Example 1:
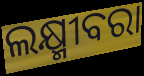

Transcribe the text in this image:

ଲକ୍ଷ୍ମୀବରା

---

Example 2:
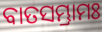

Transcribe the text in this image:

ବାତସମ୍ଭ୍ରାମଃ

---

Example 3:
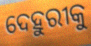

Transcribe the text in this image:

ଦେହୁରୀକୁ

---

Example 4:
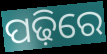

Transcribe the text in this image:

ପଢ଼ିରେ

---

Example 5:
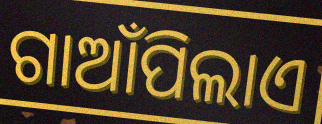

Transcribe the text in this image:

ଗାଆଁପିଲାଏ